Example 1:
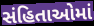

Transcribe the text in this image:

સંહિતાઓમાં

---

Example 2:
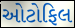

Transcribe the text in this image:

ઓટોફિલ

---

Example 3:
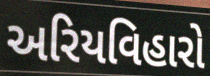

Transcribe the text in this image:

અરિયવિહારો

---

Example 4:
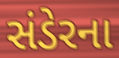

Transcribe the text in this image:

સંડેરના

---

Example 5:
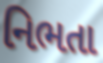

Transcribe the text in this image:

નિભતા